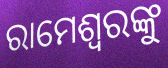
ରାମେଶ୍ୱରଙ୍କୁ